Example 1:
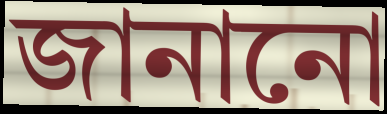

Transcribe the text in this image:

জানানো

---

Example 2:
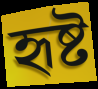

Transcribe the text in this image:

হৃষ্ট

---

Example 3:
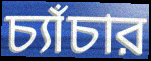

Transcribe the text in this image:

চ্যাঁচার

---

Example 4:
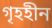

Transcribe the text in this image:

গৃহহীন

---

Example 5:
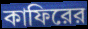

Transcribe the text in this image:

কাফিরের